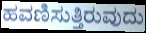
ಹವಣಿಸುತ್ತಿರುವುದು